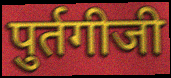
पुर्तगीजी